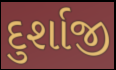
દુર્શાજી